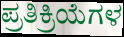
ಪ್ರತಿಕ್ರಿಯೆಗಳ